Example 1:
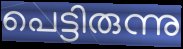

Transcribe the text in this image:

പെട്ടിരുന്നു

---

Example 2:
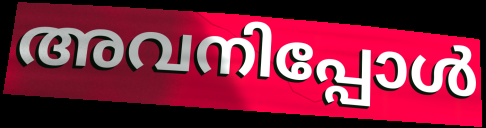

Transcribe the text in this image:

അവനിപ്പോൾ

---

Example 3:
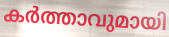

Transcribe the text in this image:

കർത്താവുമായി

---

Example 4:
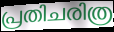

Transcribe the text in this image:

പ്രതിചരിത്ര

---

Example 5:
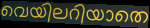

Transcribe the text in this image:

വെയിലറിയാതെ